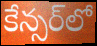
కేన్సర్‌లో